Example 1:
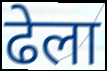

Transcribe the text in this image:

ढेला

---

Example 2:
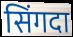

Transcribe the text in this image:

सिंगदा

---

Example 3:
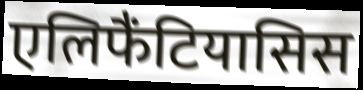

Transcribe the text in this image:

एलिफैंटियासिस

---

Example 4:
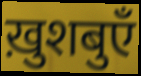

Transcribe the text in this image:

ख़ुशबुएँ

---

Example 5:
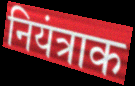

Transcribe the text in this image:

नियंत्राक